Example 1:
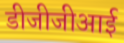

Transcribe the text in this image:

डीजीजीआई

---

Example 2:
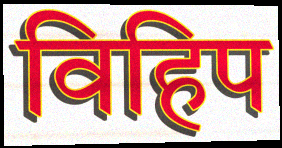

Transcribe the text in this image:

विहिप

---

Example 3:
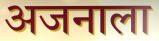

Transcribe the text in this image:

अजनाला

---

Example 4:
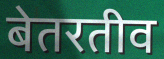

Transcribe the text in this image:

बेतरतीव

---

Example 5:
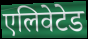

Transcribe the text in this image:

एलिवेटेड